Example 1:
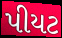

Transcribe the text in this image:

પીયટ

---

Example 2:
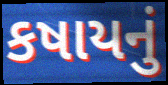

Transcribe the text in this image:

કષાયનું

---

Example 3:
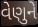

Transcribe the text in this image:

વેણુને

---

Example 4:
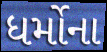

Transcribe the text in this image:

ધર્મોના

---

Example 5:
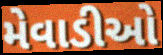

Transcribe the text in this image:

મેવાડીઓ